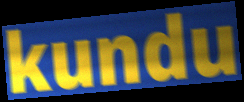
kundu